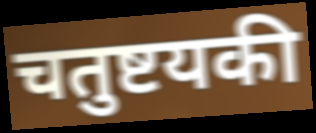
चतुष्टयकी